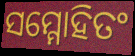
ସମ୍ମୋହିତଂ